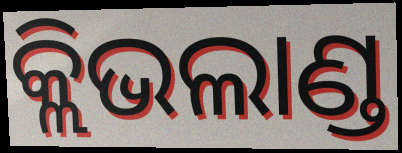
କ୍ଲିଭଲାଣ୍ଡ